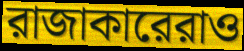
রাজাকারেরাও